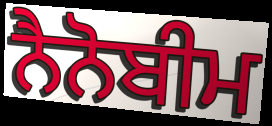
ਨੈਨੋਬੀਮ